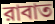
রাবাত